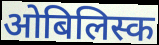
ओबिलिस्क